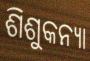
ଶିଶୁକନ୍ୟା